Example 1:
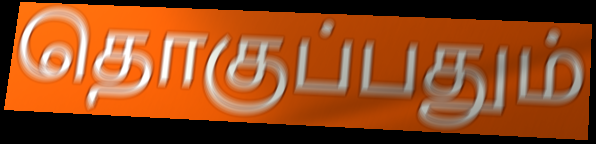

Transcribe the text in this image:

தொகுப்பதும்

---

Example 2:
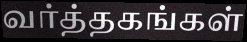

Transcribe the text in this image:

வர்த்தகங்கள்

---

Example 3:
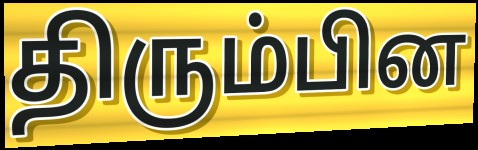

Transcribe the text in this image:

திரும்பின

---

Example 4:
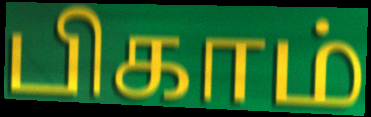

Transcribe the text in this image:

பிகாம்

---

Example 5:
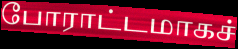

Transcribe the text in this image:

போராட்டமாகச்